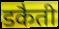
डकैती